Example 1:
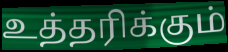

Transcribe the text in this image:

உத்தரிக்கும்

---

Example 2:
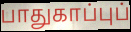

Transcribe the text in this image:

பாதுகாப்புப்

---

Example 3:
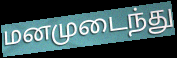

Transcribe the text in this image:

மனமுடைந்து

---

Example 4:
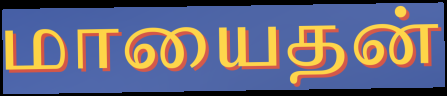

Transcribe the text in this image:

மாயைதன்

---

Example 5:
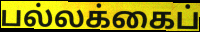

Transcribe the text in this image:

பல்லக்கைப்